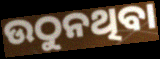
ଉଠୁନଥିବା